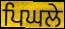
ਪਿਘਲੇ